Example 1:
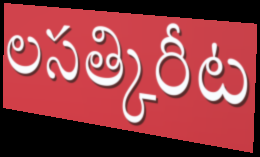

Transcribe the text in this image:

లసత్కిరీట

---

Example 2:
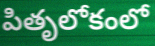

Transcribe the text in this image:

పితృలోకంలో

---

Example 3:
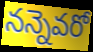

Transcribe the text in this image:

నన్నెవరో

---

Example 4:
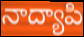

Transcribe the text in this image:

నాద్యాపి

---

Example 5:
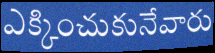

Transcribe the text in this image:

ఎక్కించుకునేవారు